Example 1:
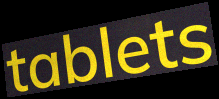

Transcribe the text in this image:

tablets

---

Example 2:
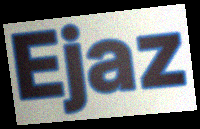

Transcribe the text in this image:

Ejaz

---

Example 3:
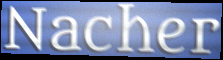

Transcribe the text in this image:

Nacher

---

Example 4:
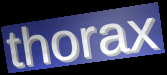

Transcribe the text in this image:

thorax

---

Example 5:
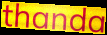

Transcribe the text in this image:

thanda